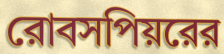
রোবসপিয়রের